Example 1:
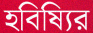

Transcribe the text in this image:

হবিষ্যির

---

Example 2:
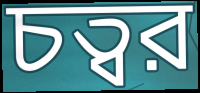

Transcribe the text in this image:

চত্বর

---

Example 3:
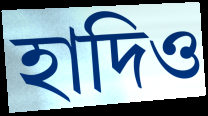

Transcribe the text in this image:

হাদিও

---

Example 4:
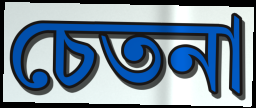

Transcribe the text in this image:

চেতনা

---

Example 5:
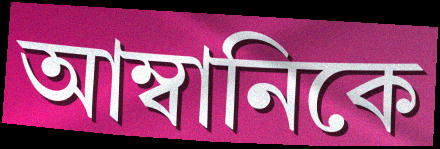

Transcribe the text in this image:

আম্বানিকে